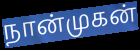
நான்முகன்